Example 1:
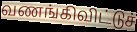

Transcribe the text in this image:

வணங்கிவிட்டுச்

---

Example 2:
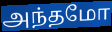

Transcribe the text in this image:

அந்தமோ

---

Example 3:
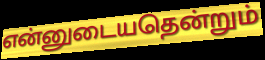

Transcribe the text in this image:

என்னுடையதென்றும்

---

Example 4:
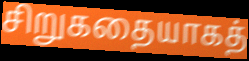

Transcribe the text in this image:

சிறுகதையாகத்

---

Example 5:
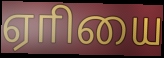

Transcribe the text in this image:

ஏரியை